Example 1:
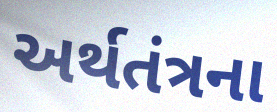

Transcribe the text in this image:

અર્થતંત્રના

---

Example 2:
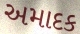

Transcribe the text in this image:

અમાદક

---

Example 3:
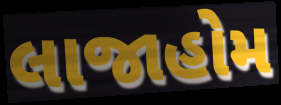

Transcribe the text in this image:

લાજાહોમ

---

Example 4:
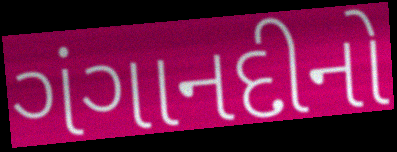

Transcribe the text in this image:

ગંગાનદીનો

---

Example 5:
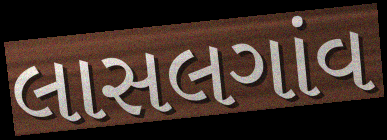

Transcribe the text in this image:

લાસલગાંવ